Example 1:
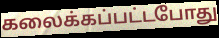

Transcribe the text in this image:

கலைக்கப்பட்டபோது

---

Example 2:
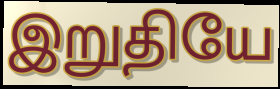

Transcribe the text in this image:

இறுதியே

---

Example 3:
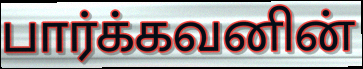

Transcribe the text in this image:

பார்க்கவனின்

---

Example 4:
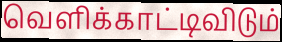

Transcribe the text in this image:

வெளிக்காட்டிவிடும்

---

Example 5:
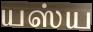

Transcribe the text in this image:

யஸ்ய